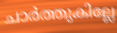
ചാർത്തുകില്ലേ